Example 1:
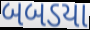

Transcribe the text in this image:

બબડયા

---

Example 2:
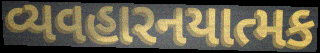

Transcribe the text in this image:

વ્યવહારનયાત્મક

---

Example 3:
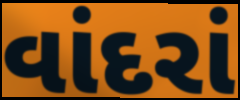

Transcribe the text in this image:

વાંદરાં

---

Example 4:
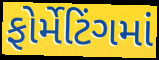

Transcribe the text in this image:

ફોર્મેટિંગમાં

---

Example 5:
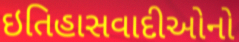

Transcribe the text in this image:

ઇતિહાસવાદીઓનો